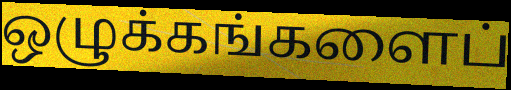
ஒழுக்கங்களைப்